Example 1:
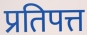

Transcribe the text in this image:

प्रतिपत्त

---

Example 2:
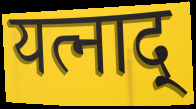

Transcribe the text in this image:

यत्नाद्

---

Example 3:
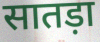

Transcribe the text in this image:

सातड़ा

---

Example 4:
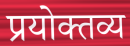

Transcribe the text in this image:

प्रयोक्तव्य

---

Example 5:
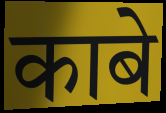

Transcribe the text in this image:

काबे